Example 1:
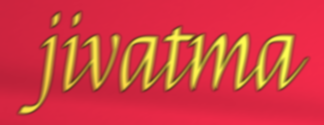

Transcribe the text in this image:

jivatma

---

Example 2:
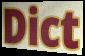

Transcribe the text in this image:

Dict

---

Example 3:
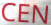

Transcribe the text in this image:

CEN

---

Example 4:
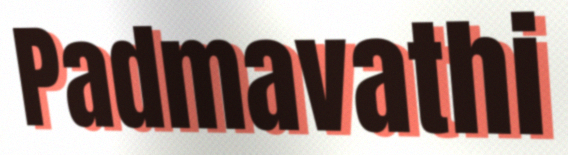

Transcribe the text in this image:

Padmavathi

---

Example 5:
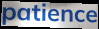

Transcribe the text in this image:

patience